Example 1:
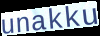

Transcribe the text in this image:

unakku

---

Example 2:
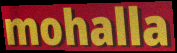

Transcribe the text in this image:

mohalla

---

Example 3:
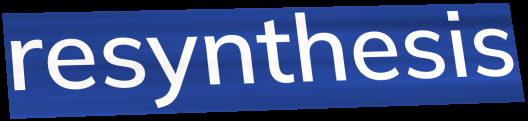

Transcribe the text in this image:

resynthesis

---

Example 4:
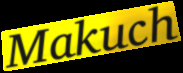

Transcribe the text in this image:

Makuch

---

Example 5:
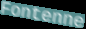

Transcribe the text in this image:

Fontenne